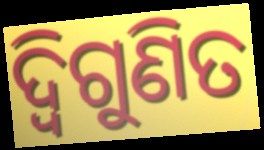
ଦ୍ଵିଗୁଣିତ